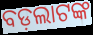
ବଡ଼ଲାଟଙ୍କ